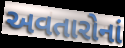
અવતારોનાં